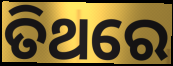
ତିଥରେ